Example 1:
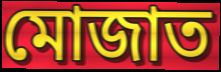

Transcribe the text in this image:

মোজাত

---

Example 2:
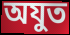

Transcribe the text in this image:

অযুত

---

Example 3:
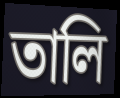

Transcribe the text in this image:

তালি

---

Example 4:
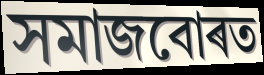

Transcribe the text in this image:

সমাজবোৰত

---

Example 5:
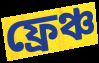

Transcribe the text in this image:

ফ্ৰেঞ্চ